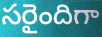
సరైందిగా